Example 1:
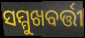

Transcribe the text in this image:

ସମ୍ମୁଖବର୍ତ୍ତୀ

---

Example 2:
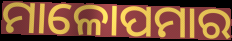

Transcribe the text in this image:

ମାଳୋପମାର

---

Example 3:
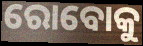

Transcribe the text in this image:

ରୋବୋକୁ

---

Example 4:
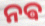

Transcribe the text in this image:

ନଵ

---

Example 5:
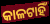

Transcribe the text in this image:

କାଳଟାହିଁ